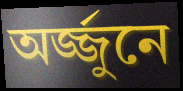
অর্জ্জুনে